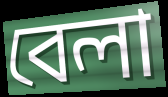
বেলা